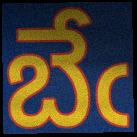
బేఁ